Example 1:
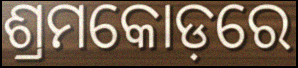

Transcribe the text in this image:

ଶ୍ରମକୋଡ଼ରେ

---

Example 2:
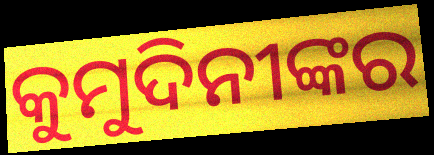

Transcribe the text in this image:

କୁମୁଦିନୀଙ୍କର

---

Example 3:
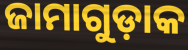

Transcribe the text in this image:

ଜାମାଗୁଡ଼ାକ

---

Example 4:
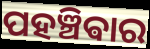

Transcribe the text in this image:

ପହଞ୍ଚିଵାର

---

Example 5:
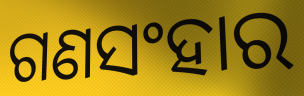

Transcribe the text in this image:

ଗଣସଂହାର